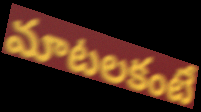
మాటలకంటే